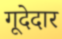
गूदेदार